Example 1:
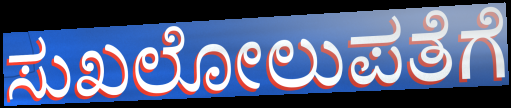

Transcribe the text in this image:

ಸುಖಲೋಲುಪತೆಗೆ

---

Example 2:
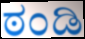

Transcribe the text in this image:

ಠಂಡಿ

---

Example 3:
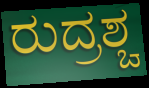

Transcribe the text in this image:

ರುದ್ರಶ್ಚ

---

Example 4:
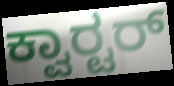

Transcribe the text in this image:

ಕ್ವಾರ‍್ಟರ್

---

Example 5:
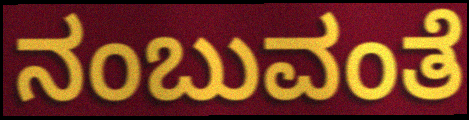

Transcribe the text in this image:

ನಂಬುವಂತೆ